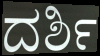
ದರ್ಶಿ